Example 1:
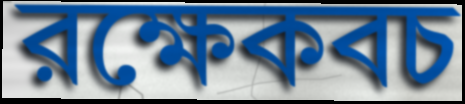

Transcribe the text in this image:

রক্ষেকবচ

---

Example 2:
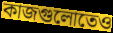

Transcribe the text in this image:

কাজগুলোতেও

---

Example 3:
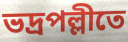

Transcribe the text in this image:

ভদ্রপল্লীতে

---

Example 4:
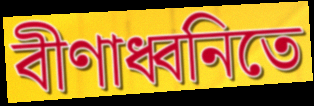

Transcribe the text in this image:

বীণাধ্বনিতে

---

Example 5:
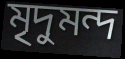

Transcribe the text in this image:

মৃদুমন্দ